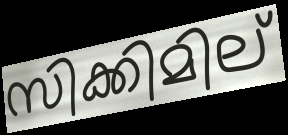
സിക്കിമില്